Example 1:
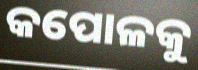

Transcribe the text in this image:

କପୋଳକୁ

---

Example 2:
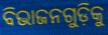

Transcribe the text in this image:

ବିଭାଜନଗୁଡ଼ିକୁ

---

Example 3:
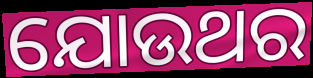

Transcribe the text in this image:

ଯୋଉଥର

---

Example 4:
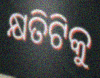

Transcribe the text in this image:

କ୍ଷତିଟିକୁ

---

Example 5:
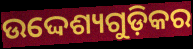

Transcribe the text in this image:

ଉଦ୍ଦେଶ୍ୟଗୁଡ଼ିକର